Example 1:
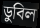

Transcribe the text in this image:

ডুবিল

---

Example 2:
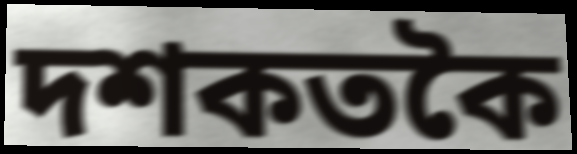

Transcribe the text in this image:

দশকতকৈ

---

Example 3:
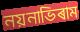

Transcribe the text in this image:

নয়নাভিৰাম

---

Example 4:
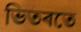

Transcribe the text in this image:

ভিতৰতে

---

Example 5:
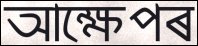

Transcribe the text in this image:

আক্ষেপৰ